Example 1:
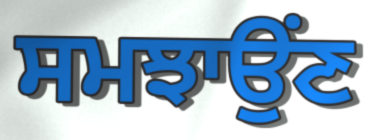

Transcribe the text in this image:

ਸਮਝਾਉਂਣ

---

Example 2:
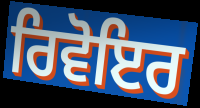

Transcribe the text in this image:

ਰਿਵੋਇਰ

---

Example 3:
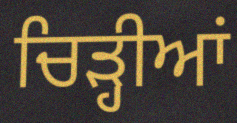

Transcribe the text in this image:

ਚਿੜ੍ਹੀਆਂ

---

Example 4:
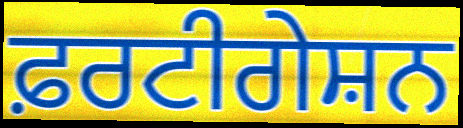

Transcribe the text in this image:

ਫ਼ਰਟੀਗੇਸ਼ਨ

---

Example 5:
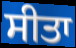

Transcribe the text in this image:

ਸੀਤਾ